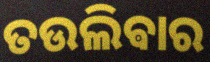
ତଉଲିଵାର